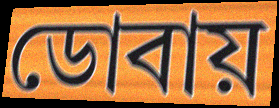
ডোবায়